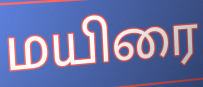
மயிரை